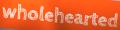
wholehearted